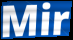
Mir